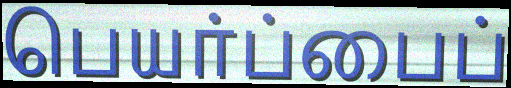
பெயர்ப்பைப்